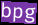
bpg